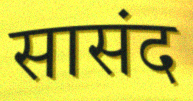
सासंद